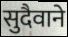
सुदैवाने